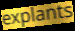
explants